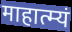
माहात्म्यं